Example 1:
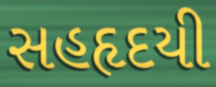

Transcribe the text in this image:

સહહૃદયી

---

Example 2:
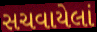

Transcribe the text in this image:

સચવાયેલાં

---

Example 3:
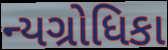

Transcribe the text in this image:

ન્યગ્રોધિકા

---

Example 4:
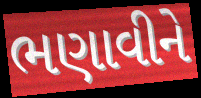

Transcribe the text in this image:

ભણાવીને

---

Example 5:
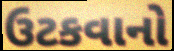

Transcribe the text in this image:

ઉટકવાનો